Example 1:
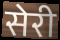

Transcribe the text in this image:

सेरी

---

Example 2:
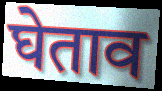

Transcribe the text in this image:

घेताव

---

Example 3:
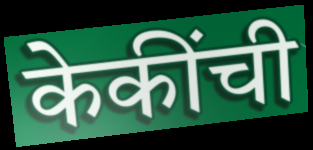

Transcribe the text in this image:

केकींची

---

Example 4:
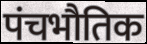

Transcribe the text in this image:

पंचभौतिक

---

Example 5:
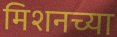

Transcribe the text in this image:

मिशनच्या